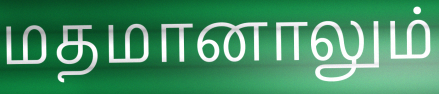
மதமானாலும்